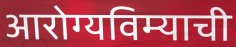
आरोग्यविम्याची